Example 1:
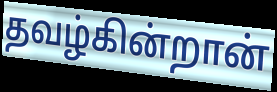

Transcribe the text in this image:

தவழ்கின்றான்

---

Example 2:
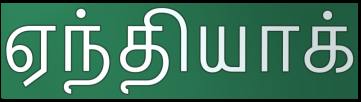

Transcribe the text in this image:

ஏந்தியாக்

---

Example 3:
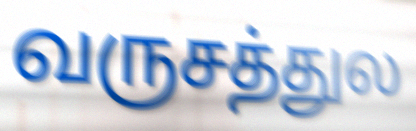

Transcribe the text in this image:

வருசத்துல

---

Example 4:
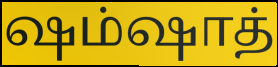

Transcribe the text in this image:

ஷம்ஷாத்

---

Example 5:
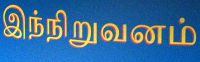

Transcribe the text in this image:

இந்நிறுவனம்